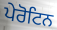
ਪੇਰੋਟਿਨ